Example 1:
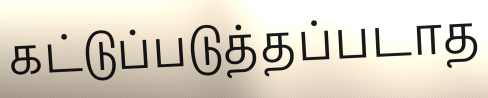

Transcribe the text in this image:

கட்டுப்படுத்தப்படாத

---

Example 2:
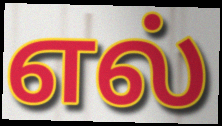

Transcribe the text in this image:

எல்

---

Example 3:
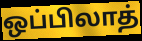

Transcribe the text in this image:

ஒப்பிலாத்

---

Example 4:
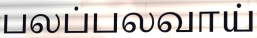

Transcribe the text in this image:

பலப்பலவாய்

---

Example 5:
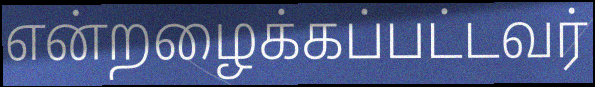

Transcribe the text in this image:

என்றழைக்கப்பட்டவர்